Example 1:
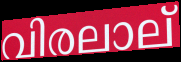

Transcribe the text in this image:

വിരലാല്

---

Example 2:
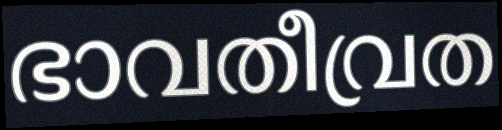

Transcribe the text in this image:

ഭാവതീവ്രത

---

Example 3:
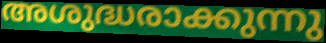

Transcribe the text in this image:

അശുദ്ധരാക്കുന്നു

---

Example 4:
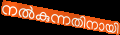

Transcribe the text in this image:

നൽകുന്നതിനായി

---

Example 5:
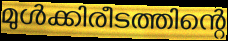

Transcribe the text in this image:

മുൾക്കിരീടത്തിന്റെ